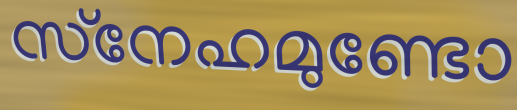
സ്‌നേഹമുണ്ടോ